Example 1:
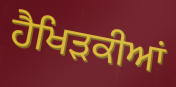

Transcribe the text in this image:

ਹੈਖਿੜਕੀਆਂ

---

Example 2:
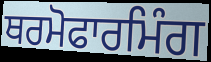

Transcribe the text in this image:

ਥਰਮੋਫਾਰਮਿੰਗ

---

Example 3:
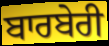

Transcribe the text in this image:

ਬਾਰਬੇਰੀ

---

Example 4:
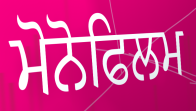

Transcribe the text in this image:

ਮੋਨੋਫਿਲਮ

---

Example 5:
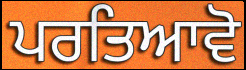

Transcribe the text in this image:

ਪਰਤਿਆਵੋ